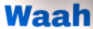
Waah